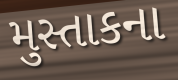
મુસ્તાકના